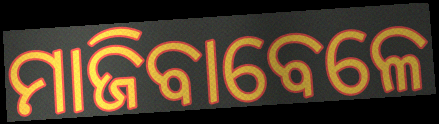
ମାଜିବାବେଳେ